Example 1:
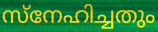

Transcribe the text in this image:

സ്നേഹിച്ചതും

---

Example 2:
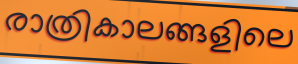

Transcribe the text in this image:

രാത്രികാലങ്ങളിലെ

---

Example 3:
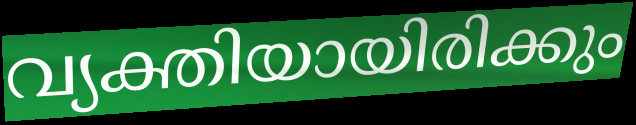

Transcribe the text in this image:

വ്യക്തിയായിരിക്കും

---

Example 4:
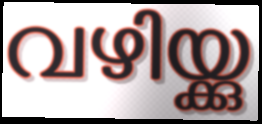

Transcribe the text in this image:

വഴിയ്ക്കു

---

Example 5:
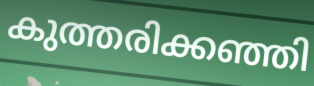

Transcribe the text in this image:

കുത്തരിക്കഞ്ഞി